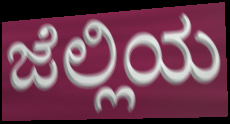
ಜೆಲ್ಲಿಯ